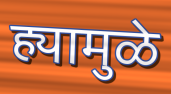
ह्यामुळे